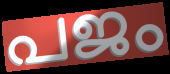
പജം